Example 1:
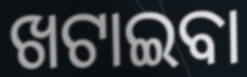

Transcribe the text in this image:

ଖଟାଇବା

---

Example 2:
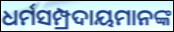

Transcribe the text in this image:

ଧର୍ମସମ୍ପ୍ରଦାୟମାନଙ୍କ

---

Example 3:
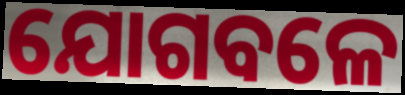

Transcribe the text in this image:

ଯୋଗବଳେ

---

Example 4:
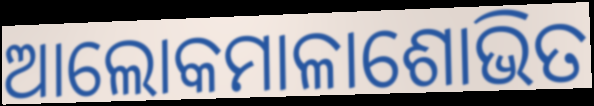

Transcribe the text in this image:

ଆଲୋକମାଳାଶୋଭିତ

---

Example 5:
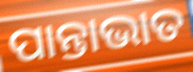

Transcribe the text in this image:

ପାନ୍ତାଭାତ